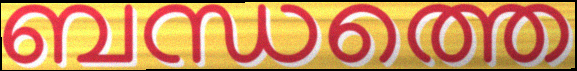
ബന്ധത്തെ